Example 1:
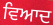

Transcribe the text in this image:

ਵਿਆਦ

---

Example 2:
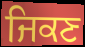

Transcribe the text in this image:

ਜਿਕਣ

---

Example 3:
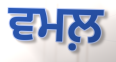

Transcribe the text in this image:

ਵਮਲ਼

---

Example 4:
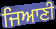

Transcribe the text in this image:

ਜਿਆਣੀ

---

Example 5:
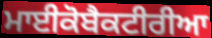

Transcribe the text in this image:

ਮਾਈਕੋਬੈਕਟੀਰੀਆ